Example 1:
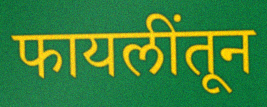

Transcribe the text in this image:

फायलींतून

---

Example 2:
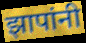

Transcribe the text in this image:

झापांनी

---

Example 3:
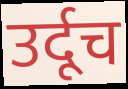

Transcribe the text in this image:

उर्दूच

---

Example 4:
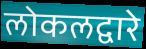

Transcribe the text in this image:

लोकलद्वारे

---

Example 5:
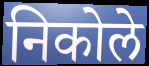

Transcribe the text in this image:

निकोले